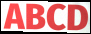
ABCD